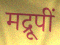
मद्रूपीं